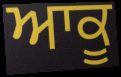
ਆਕੂ